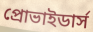
প্রোভাইডার্স